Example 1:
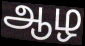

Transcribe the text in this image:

ஆழ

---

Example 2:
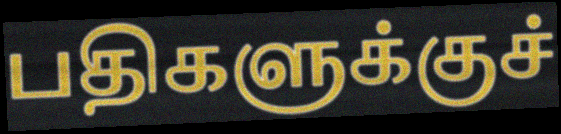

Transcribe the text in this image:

பதிகளுக்குச்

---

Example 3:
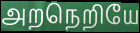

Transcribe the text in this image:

அறநெறியே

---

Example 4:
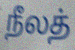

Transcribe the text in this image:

நீலத்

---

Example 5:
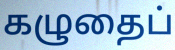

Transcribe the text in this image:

கழுதைப்